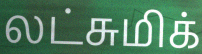
லட்சுமிக்